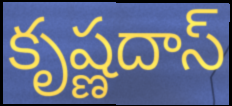
కృష్ణదాస్